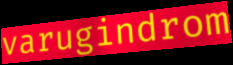
varugindrom